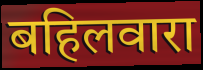
बहिलवारा